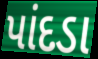
પાંદડા